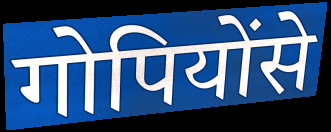
गोपियोंसे